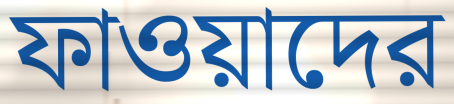
ফাওয়াদের